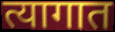
त्यागात